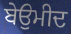
ਬੇਉਮੀਦ